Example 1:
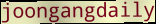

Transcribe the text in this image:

joongangdaily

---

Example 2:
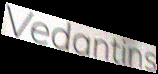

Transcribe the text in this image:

Vedantins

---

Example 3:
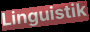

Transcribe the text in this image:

Linguistik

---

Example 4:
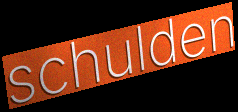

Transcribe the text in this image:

schulden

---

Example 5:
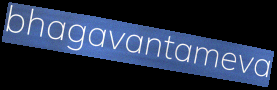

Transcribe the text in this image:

bhagavantameva